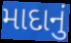
માદાનું